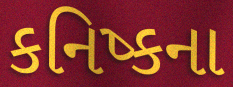
કનિષ્કના